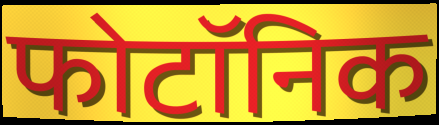
फोटॉनिक